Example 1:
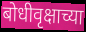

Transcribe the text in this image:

बोधीवृक्षाच्या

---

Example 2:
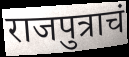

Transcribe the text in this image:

राजपुत्राचं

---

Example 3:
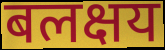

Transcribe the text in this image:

बलक्षय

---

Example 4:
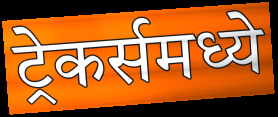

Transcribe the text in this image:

ट्रेकर्समध्ये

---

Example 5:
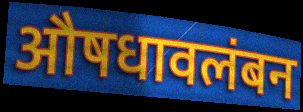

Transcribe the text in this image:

औषधावलंबन